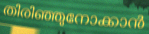
തിരിഞ്ഞുനോക്കാൻ